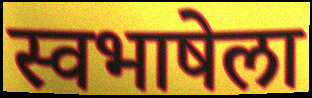
स्वभाषेला